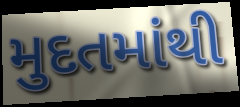
મુદતમાંથી